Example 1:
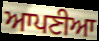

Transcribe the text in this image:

ਆਪਣੀਆ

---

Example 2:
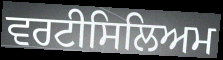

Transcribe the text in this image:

ਵਰਟੀਸਿਲਿਅਮ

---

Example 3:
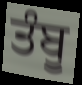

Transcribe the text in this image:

ਤੰਬੂ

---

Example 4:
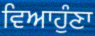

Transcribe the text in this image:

ਵਿਆਹੁੰਣਾ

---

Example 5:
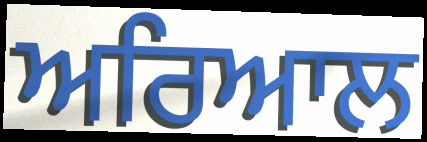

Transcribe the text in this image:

ਅਰਿਆਲ